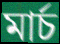
মাৰ্চ